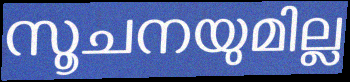
സൂചനയുമില്ല